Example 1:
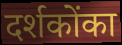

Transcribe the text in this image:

दर्शकोंका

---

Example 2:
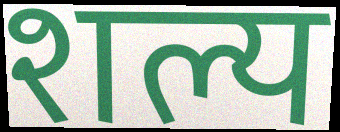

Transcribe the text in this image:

शल्य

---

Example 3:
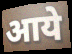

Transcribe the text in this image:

आये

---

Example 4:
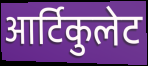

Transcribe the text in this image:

आर्टिकुलेट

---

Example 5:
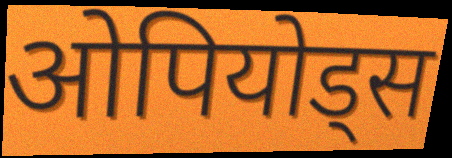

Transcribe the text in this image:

ओपियोड्स